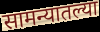
सामन्यातल्या